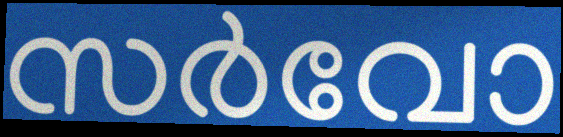
സർവോ